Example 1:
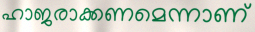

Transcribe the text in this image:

ഹാജരാക്കണമെന്നാണ്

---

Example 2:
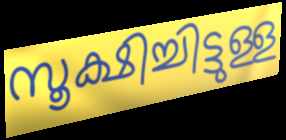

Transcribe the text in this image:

സൂക്ഷിച്ചിട്ടുള്ള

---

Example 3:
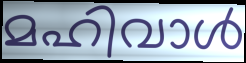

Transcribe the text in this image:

മഹിവാൾ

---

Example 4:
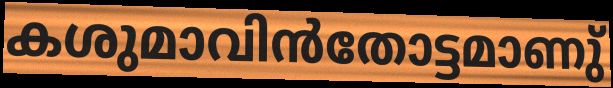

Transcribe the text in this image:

കശുമാവിൻതോട്ടമാണു്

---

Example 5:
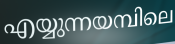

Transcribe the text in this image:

എയ്യുന്നയമ്പിലെ